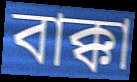
বাক্কা